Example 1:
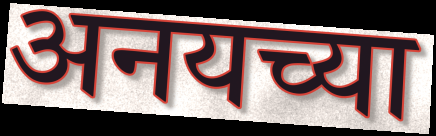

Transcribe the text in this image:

अनयच्या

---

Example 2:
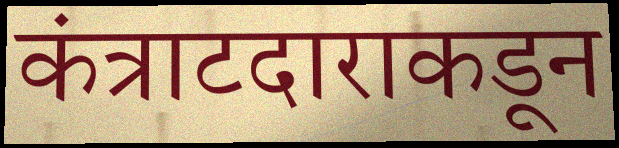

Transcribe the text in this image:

कंत्राटदाराकडून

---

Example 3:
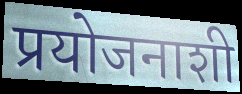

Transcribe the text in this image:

प्रयोजनाशी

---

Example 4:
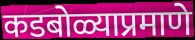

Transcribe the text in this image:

कडबोळ्याप्रमाणे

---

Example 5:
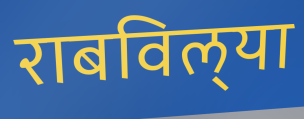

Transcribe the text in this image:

राबविल्या